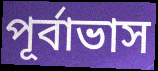
পূর্বাভাস